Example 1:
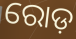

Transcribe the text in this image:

ରୋଡ଼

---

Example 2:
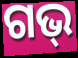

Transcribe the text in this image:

ଗଭ୍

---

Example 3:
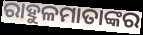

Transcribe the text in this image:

ରାହୁଳମାତାଙ୍କର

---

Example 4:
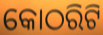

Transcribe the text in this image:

କୋଠରିଟି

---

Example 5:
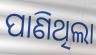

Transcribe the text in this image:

ପାଣିଥିଲା